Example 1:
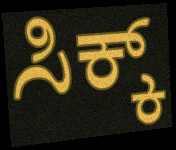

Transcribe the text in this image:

ಸಿಕ್ಕ್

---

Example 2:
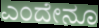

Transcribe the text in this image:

ಎಂದೇನೂ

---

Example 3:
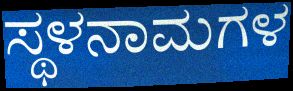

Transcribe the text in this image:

ಸ್ಥಳನಾಮಗಳ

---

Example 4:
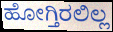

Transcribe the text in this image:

ಹೋಗ್ತಿರಲಿಲ್ಲ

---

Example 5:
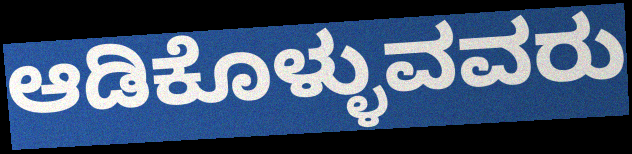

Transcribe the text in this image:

ಆಡಿಕೊಳ್ಳುವವರು